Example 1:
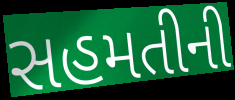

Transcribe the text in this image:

સહમતીની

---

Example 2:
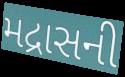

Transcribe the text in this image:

મદ્રાસની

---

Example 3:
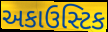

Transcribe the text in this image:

અકાઉસ્ટિક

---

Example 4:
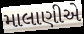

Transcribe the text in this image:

માલાણીએ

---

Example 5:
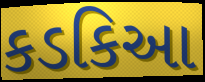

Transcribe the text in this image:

કડકિઆ